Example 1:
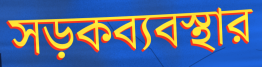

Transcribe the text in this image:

সড়কব্যবস্থার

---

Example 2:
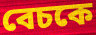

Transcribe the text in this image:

বেচকে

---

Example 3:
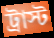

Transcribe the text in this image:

ট্রাস্ট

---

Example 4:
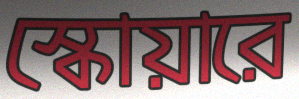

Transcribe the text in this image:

স্কোয়ারে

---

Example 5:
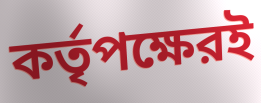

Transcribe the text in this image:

কর্তৃপক্ষেরই